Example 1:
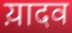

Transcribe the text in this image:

य़ादव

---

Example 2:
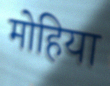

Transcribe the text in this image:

मोहिया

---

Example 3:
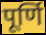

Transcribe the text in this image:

पूर्णि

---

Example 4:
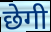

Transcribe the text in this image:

छेगी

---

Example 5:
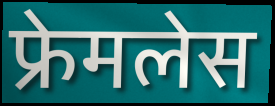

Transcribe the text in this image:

फ्रेमलेस